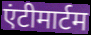
एंटीमार्टम